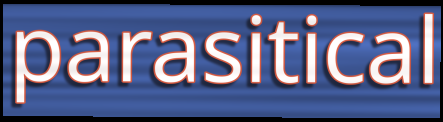
parasitical